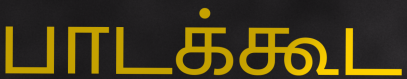
பாடக்கூட